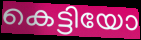
കെട്ടിയോ